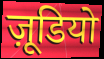
ज़ूडियो